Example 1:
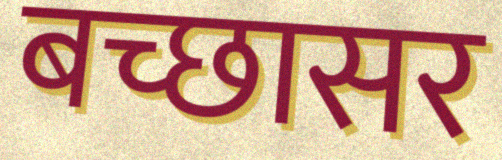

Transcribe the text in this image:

बच्छासर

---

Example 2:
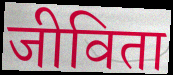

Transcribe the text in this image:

जीविता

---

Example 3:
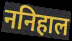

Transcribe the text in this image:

ननिहाल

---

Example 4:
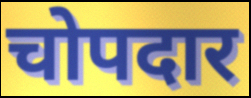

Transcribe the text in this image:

चोपदार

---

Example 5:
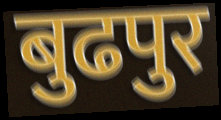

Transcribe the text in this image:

बुढपुर